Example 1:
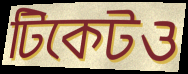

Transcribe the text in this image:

টিকেটও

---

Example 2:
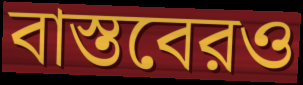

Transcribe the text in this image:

বাস্তবেরও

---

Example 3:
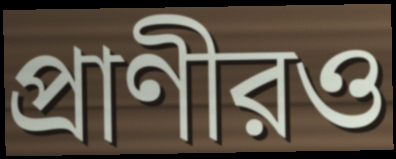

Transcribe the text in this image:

প্রাণীরও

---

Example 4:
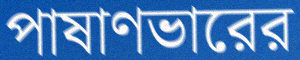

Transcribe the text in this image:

পাষাণভারের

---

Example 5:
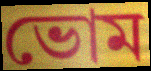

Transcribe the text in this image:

ভোম